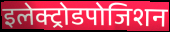
इलेक्ट्रोडपोजिशन